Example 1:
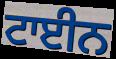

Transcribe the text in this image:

ਟਾਈਨ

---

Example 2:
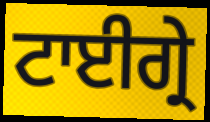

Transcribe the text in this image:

ਟਾਈਗ੍ਰੇ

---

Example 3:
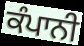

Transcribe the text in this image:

ਕੰਪਾਨੀ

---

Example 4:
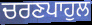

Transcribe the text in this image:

ਚਰਣਪਾਹੁਲ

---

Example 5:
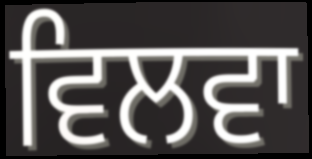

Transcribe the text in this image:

ਵਿਲਵਾ